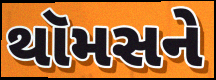
થૉમસને